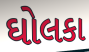
ઘોલકા